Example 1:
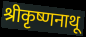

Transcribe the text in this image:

श्रीकृष्णनाथू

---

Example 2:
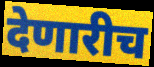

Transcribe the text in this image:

देणारीच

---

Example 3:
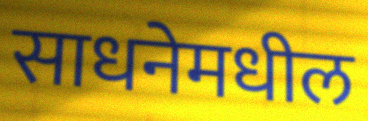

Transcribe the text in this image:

साधनेमधील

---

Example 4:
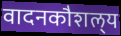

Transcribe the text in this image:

वादनकौशल्य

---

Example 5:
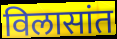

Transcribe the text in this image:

विलासांत